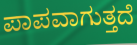
ಪಾಪವಾಗುತ್ತದೆ